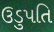
ઉડુપતિ